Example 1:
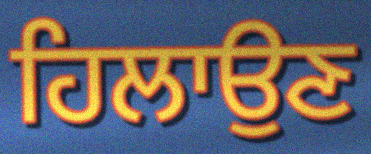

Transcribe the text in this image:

ਹਿਲਾਉਣ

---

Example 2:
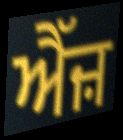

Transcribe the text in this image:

ਐੱਜ਼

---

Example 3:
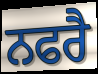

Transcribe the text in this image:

ਨਫਰੈ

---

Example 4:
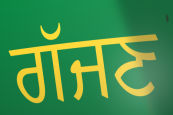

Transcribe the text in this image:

ਗੱਜਣ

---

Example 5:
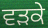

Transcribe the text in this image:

ਵੜਕੇ